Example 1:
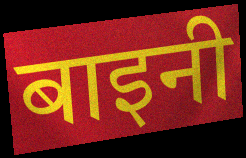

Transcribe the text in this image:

बाइनी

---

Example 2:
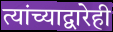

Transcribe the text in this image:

त्यांच्याद्वारेही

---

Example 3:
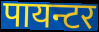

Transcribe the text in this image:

पायन्टर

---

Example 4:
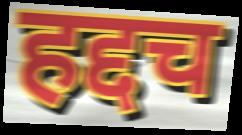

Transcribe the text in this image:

हद्दच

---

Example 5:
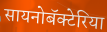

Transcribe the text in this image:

सायनोबॅक्टेरिया